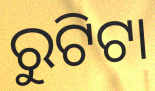
ରୁଟିଟା